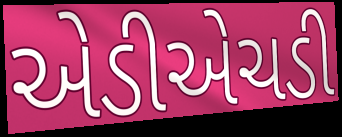
એડીએચડી